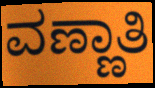
ವಣ್ಣಾತಿ